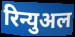
रिन्युअल